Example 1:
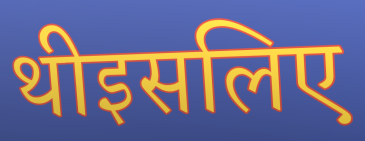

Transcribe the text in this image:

थीइसलिए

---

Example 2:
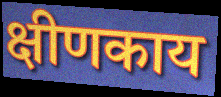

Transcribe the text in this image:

क्षीणकाय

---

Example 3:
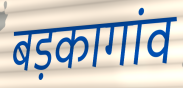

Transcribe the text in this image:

बड़कागांव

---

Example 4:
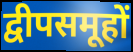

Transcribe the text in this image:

द्वीपसमूहों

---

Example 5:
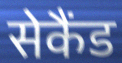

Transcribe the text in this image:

सेकैंड